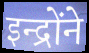
इन्द्रोंने